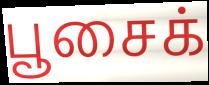
பூசைக்